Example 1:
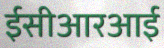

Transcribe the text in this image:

ईसीआरआई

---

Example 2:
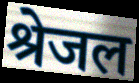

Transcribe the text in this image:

श्रेजल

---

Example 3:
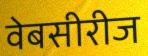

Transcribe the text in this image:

वेबसीरीज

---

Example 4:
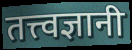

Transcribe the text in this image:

तत्त्वज्ञानी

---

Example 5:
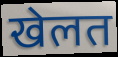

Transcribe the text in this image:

खेलत